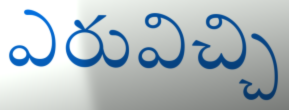
ఎరువిచ్చి